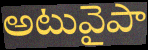
అటువైపా